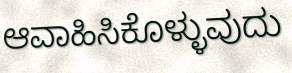
ಆವಾಹಿಸಿಕೊಳ್ಳುವುದು